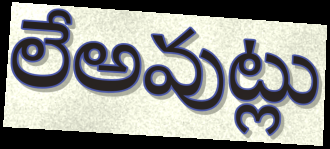
లేఅవుట్లు